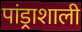
पांड्राशाली